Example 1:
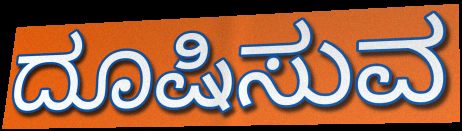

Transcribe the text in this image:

ದೂಷಿಸುವ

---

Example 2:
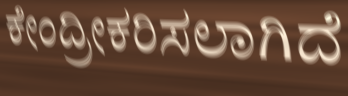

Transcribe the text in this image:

ಕೇಂದ್ರೀಕರಿಸಲಾಗಿದೆ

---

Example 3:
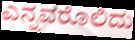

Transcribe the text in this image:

ಎನ್ನವರೊಲಿದು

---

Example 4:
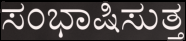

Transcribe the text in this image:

ಸಂಭಾಷಿಸುತ್ತ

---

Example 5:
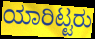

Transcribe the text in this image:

ಯಾರಿಟ್ಟರು